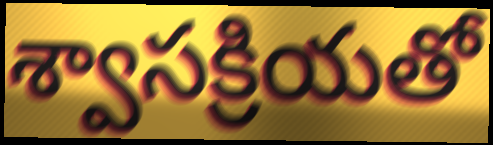
శ్వాసక్రియతో